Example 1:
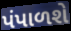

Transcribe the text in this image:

પંપાળશે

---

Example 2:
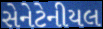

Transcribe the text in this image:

સેનેટેનીયલ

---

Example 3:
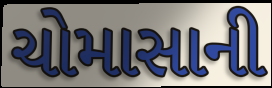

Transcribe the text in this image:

ચોમાસાની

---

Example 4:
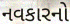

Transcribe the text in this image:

નવકારનો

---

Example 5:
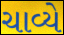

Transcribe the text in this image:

ચાવ્યે